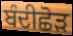
ਬੰਦੀਛੋੜ